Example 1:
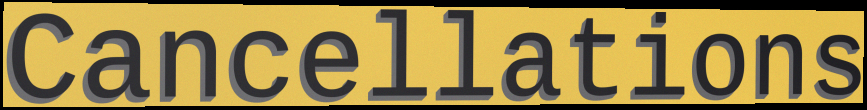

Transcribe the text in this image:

Cancellations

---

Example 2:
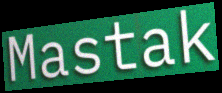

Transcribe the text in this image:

Mastak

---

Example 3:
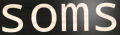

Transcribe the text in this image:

soms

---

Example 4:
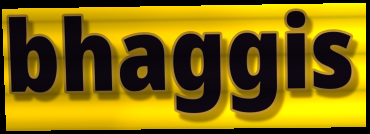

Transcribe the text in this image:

bhaggis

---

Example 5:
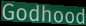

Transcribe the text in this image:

Godhood